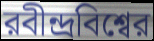
রবীন্দ্রবিশ্বের